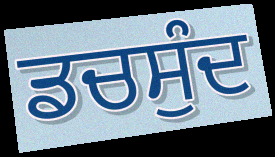
ਡਚਸੁੰਦ